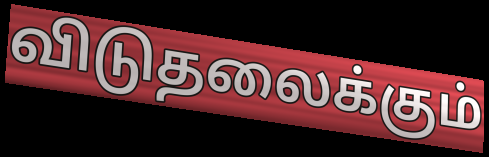
விடுதலைக்கும்